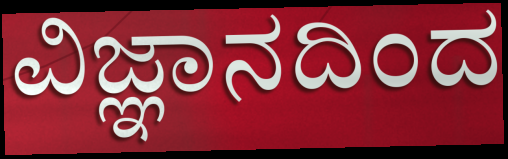
ವಿಜ್ಞಾನದಿಂದ